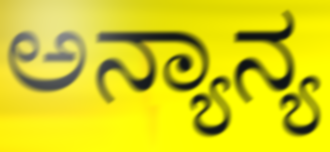
ಅನ್ಯಾನ್ಯ